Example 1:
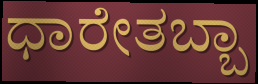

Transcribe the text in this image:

ಧಾರೇತಬ್ಬಾ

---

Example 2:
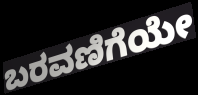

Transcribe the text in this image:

ಬರವಣಿಗೆಯೇ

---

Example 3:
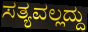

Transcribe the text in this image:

ಸತ್ಯವಲ್ಲದ್ದು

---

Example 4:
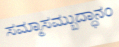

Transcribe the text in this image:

ಸಮ್ಮಾಸಮ್ಬುದ್ಧಾನಂ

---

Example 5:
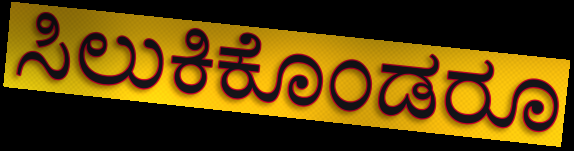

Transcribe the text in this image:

ಸಿಲುಕಿಕೊಂಡರೂ